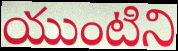
యుంటిని